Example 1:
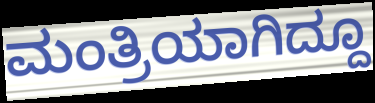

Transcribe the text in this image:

ಮಂತ್ರಿಯಾಗಿದ್ದೂ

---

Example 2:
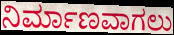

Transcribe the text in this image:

ನಿರ್ಮಾಣವಾಗಲು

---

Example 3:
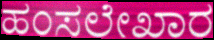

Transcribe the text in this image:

ಹಂಸಲೇಖಾರ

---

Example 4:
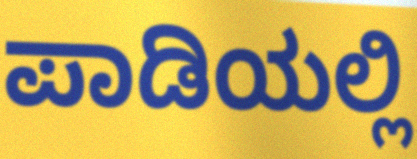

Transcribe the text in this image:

ಪಾಡಿಯಲ್ಲಿ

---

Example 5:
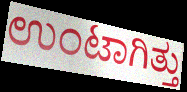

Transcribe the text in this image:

ಉಂಟಾಗಿತ್ತು